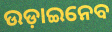
ଉଡ଼ାଇନେବ